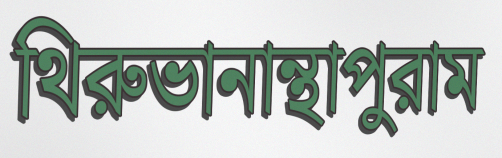
থিরুভানান্থাপুরাম